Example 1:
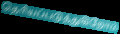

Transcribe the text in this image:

தெரியப்படுத்துகிறோம்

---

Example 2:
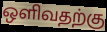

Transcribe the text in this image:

ஒளிவதற்கு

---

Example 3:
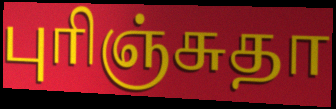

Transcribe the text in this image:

புரிஞ்சுதா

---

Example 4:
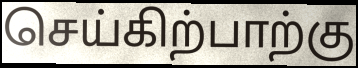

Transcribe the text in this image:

செய்கிற்பாற்கு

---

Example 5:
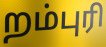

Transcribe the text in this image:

றம்புரி